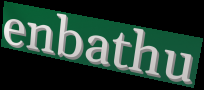
enbathu